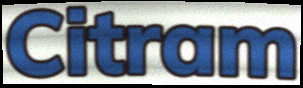
Citram